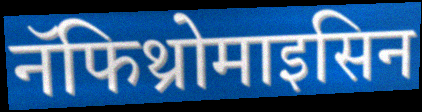
नॅफिथ्रोमाइसिन